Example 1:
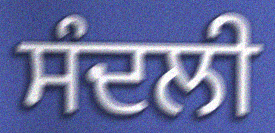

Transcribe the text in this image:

ਸੰਦਲੀ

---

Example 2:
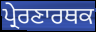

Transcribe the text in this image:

ਪ੍ਰੇਰਣਾਰਥਕ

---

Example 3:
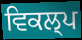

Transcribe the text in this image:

ਵਿਕਲ੍ਪ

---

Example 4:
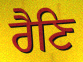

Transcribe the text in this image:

ਰੈਣਿ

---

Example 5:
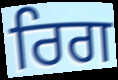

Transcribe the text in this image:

ਰਿਗ